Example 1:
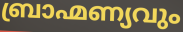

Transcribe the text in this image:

ബ്രാഹ്മണ്യവും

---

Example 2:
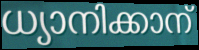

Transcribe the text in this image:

ധ്യാനിക്കാന്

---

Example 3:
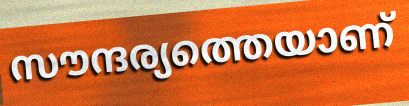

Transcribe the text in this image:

സൗന്ദര്യത്തെയാണ്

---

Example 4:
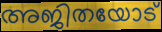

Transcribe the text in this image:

അജിതയോട്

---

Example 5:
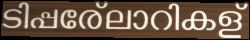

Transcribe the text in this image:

ടിപ്പര്ലോറികള്